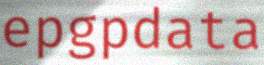
epgpdata